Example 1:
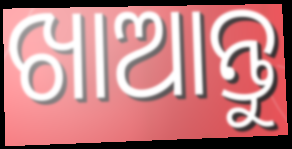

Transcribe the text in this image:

ଖାଆନ୍ତୁ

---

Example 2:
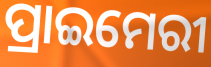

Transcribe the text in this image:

ପ୍ରାଇମେରୀ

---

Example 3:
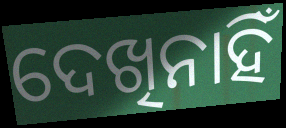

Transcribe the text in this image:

ଦେଖିନାହିଁ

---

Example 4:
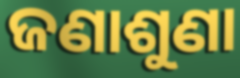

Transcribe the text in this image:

ଜଣାଶୁଣା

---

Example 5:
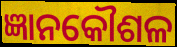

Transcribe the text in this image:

ଜ୍ଞାନକୌଶଳ